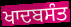
ਖਾਦਬਸੰਤ